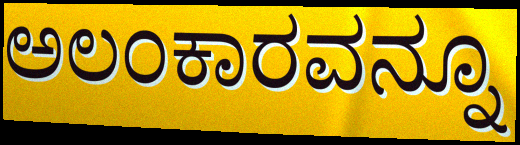
ಅಲಂಕಾರವನ್ನೂ